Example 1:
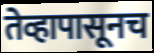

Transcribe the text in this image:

तेव्हापासूनच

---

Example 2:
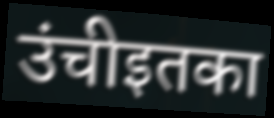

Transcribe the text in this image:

उंचीइतका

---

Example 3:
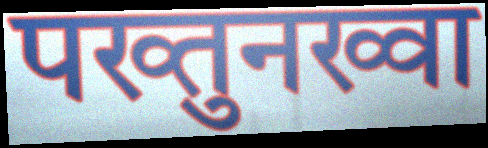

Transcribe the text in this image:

पख्तुनख्वा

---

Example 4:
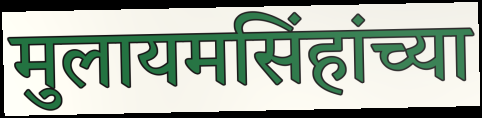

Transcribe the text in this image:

मुलायमसिंहांच्या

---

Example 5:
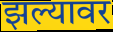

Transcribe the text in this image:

झल्यावर